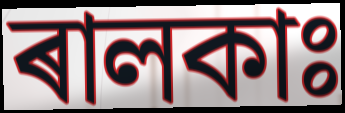
ৰালকাঃ